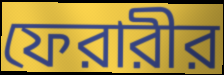
ফেরারীর